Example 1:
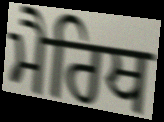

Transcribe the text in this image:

ਮੈਰਿਥ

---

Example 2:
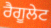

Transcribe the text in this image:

ਰੈਗੂਲੇਟ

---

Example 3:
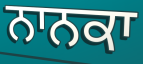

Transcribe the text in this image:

ਨਾਨਕਾ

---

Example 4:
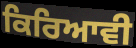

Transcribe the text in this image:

ਕਿਰਿਆਵੀ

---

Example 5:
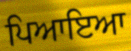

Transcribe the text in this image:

ਪਿਆਇਆ